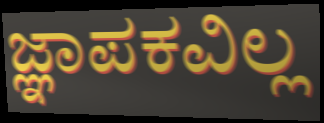
ಜ್ಞಾಪಕವಿಲ್ಲ